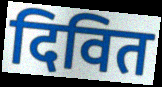
दिवित